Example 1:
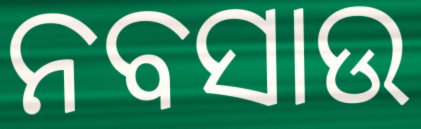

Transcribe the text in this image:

ନବସାଉ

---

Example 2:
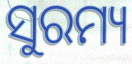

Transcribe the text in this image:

ସୁରମ୍ୟ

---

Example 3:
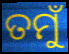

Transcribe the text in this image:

ତମୁଁ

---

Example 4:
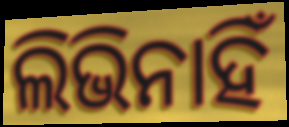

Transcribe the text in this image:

ଲିଭିନାହିଁ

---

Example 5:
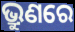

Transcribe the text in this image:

ଭ୍ରୁଣରେ